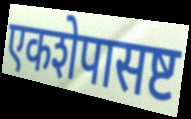
एकशेपासष्ट